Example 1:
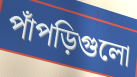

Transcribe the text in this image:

পাঁপড়িগুলো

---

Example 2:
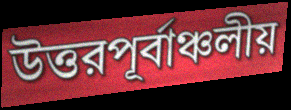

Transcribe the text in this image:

উত্তরপূর্বাঞ্চলীয়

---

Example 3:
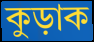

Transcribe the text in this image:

কুড়াক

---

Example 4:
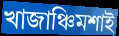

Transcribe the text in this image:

খাজাঞ্চিমশাই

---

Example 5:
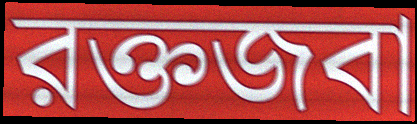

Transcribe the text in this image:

রক্তজবা